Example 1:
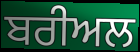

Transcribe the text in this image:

ਬਰੀਅਲ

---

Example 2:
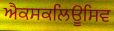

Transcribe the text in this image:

ਐਕਸਕਲਿਊਸਿਵ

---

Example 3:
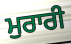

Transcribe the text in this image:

ਮੁਰਾਰੀ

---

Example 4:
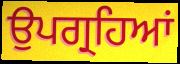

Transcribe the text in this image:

ਉਪਗ੍ਰਹਿਆਂ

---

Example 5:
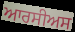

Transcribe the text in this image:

ਆਰਸੀਅਸ